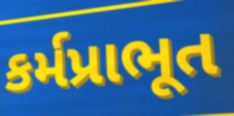
કર્મપ્રાભૂત